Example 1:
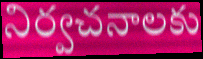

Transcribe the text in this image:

నిర్వచనాలకు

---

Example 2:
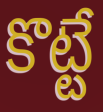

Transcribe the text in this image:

కొట్టే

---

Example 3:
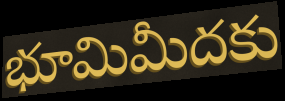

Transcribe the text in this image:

భూమిమీదకు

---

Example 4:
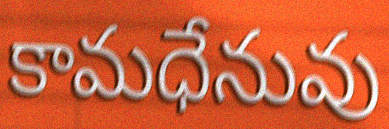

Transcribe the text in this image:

కామధేనువు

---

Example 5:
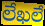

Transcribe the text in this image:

లేఖలే